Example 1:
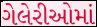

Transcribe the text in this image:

ગેલેરીઓમાં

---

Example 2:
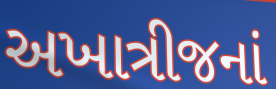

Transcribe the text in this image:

અખાત્રીજનાં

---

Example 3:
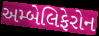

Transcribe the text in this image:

અમ્બેલિફેરોન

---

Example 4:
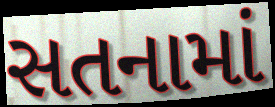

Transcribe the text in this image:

સતનામાં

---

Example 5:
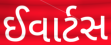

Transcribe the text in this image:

ઈવાર્ટસ